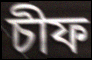
চীফ